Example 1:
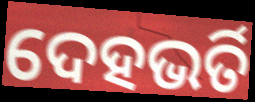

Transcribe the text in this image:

ଦେହଭର୍ତି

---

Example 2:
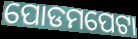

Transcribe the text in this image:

ପୋଡମପେଟା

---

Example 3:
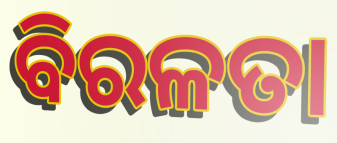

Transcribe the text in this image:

ବିରଳତା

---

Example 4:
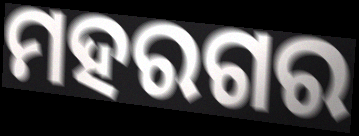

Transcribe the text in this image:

ମହରଗର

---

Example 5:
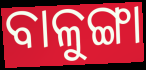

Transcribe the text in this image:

ବାଳୁଙ୍ଗା